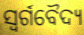
ସ୍ୱର୍ଗବୈଦ୍ୟ